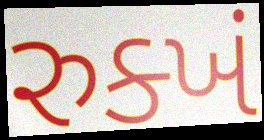
રુક્ખં